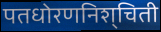
पतधोरणनिश्चिती